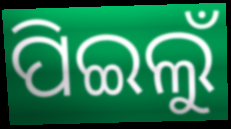
ପିଇଲୁଁ